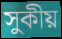
সুকীয়